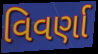
વિવર્ણા